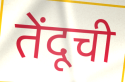
तेंदूची